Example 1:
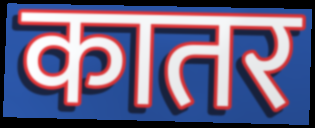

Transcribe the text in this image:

कातर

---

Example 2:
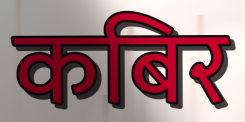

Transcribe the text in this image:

कबिर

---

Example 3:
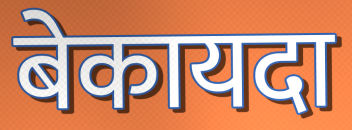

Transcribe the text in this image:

बेकायदा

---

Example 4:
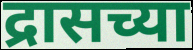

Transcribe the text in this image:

द्रासच्या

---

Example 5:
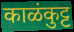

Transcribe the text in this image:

काळंकुट्ट